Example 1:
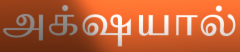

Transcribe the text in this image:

அக்‌ஷயால்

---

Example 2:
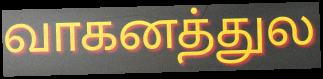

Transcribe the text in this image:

வாகனத்துல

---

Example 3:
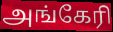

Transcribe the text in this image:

அங்கேரி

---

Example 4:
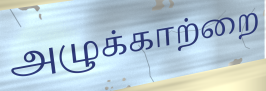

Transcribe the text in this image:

அழுக்காற்றை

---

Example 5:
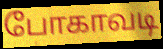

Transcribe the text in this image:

போகாவடி